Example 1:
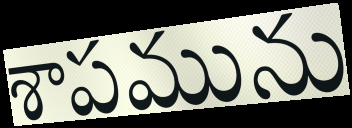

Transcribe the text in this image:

శాపమును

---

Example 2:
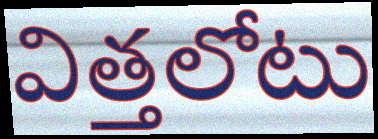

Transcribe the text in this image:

విత్తలోటు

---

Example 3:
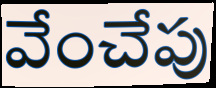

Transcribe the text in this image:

వేంచేపు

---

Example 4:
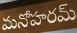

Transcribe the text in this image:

మనోహరమ్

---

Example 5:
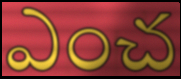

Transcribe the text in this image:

ఎంచ